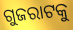
ଗୁଜରାଟକୁ